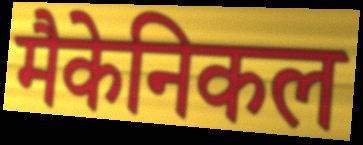
मैकेनिकल